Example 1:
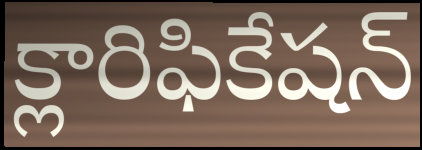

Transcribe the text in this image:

క్లారిఫికేషన్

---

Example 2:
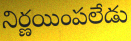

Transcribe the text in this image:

నిర్ణయింపలేడు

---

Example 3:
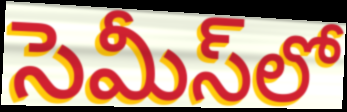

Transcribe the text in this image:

సెమీస్‌లో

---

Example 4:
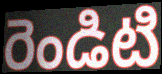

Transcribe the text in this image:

రెండిటి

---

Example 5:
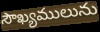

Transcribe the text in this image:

సౌఖ్యములును